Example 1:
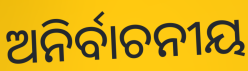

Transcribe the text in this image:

ଅନିର୍ବାଚନୀୟ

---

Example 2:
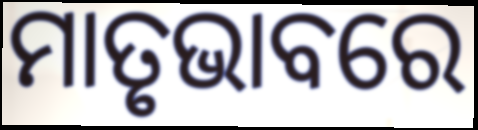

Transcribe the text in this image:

ମାତୃଭାବରେ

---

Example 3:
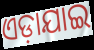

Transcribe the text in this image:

ଏଡ଼ାଯାଇ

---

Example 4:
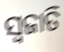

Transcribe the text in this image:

ସ୍ୱଜାତି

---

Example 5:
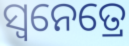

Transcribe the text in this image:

ସ୍ୱନେତ୍ରେ